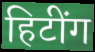
हिटींग